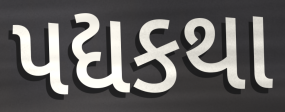
પદ્યકથા